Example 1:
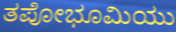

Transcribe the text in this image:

ತಪೋಭೂಮಿಯು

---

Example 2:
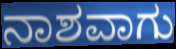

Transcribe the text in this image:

ನಾಶವಾಗು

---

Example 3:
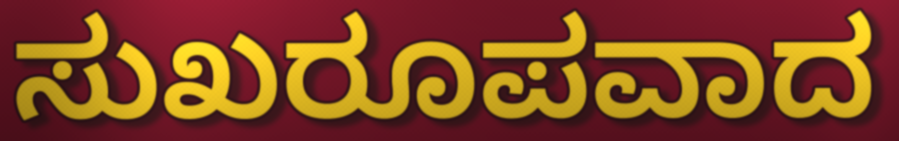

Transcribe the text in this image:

ಸುಖರೂಪವಾದ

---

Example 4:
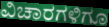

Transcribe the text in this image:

ವಿಚಾರಗಳಿಗೂ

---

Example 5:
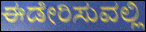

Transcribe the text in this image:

ಈಡೇರಿಸುವಲ್ಲಿ